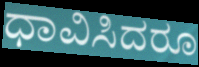
ಧಾವಿಸಿದರೂ